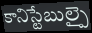
కానిస్టేబుల్పై